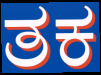
ತಕ